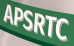
APSRTC